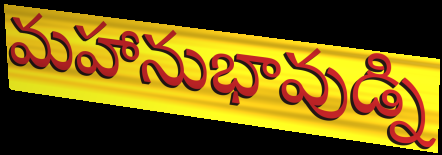
మహానుభావుడ్ని